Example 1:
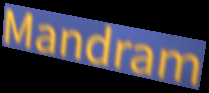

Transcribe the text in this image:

Mandram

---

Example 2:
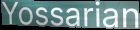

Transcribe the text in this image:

Yossarian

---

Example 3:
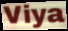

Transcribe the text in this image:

Viya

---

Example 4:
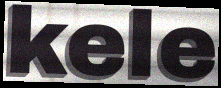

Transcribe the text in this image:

kele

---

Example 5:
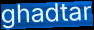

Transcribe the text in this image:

ghadtar